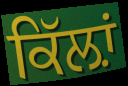
ਕਿੱਲ਼ਾਂ